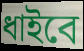
ধাইবে